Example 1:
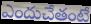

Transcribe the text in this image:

ఎందుచేతంటే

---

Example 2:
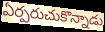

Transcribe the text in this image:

ఏర్పరుచుకొన్నాడు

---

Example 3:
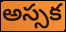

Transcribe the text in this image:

అస్సక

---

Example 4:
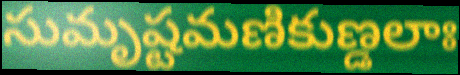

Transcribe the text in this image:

సుమృష్టమణికుణ్డలాః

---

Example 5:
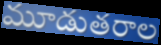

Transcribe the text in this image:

మూడుతరాల